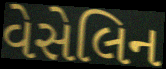
વેસેલિન